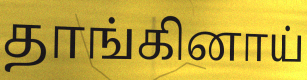
தாங்கினாய்